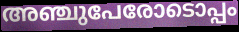
അഞ്ചുപേരോടൊപ്പം